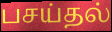
பசய்தல்